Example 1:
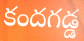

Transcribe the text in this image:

కందగడ్డ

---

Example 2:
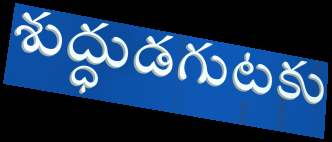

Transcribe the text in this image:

శుద్ధుడగుటకు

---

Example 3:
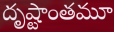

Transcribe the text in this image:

దృష్టాంతమూ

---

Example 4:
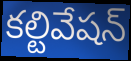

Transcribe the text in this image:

కల్టివేషన్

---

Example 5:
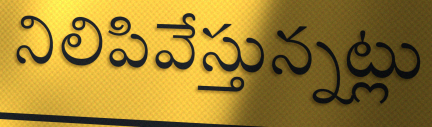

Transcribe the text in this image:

నిలిపివేస్తున్నట్లు